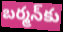
బర్మన్‌కు